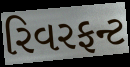
રિવરફન્ટ